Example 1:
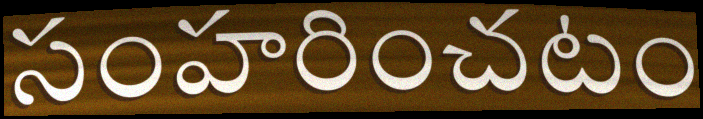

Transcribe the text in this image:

సంహరించటం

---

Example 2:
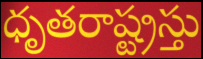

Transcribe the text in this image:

ధృతరాష్ట్రస్తు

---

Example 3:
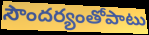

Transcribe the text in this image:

సౌందర్యంతోపాటు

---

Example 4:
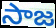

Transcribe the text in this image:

సాజ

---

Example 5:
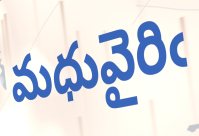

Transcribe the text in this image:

మధువైరిఁ